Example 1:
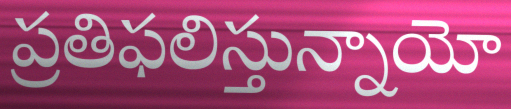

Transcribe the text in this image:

ప్రతిఫలిస్తున్నాయో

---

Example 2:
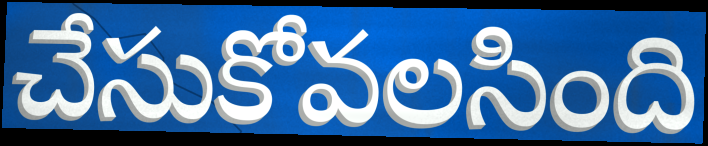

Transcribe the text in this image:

చేసుకోవలసింది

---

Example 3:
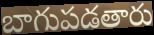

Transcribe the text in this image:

బాగుపడతారు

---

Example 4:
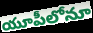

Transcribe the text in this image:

యూపీలోనూ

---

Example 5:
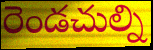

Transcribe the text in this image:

రెండచుల్ని